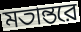
মতান্তরে